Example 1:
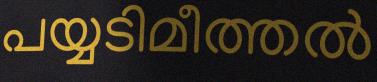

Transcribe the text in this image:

പയ്യടിമീത്തൽ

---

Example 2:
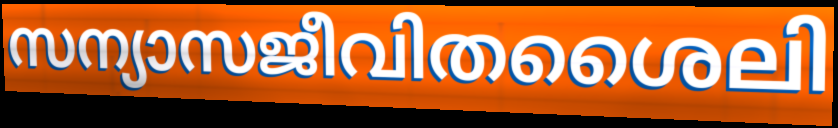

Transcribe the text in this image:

സന്യാസജീവിതശൈലി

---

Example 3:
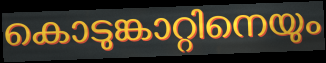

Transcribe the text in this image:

കൊടുങ്കാറ്റിനെയും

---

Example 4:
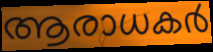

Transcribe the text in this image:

ആരാധകർ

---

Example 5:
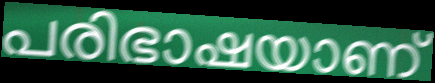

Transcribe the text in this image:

പരിഭാഷയാണ്